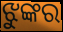
ଝୁଙ୍କର